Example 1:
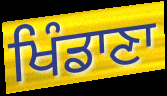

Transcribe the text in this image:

ਖਿੰਡਾਣਾ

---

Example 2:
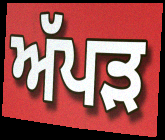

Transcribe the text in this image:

ਅੱਪੜ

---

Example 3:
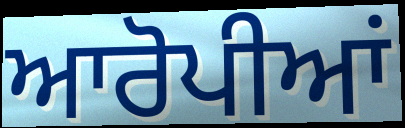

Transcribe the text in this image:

ਆਰੋਪੀਆਂ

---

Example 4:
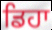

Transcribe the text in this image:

ਡਿਹਾ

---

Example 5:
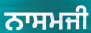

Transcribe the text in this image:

ਨਾਸਮਜੀ